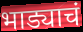
भाड्याचं